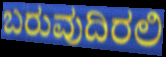
ಬರುವುದಿರಲಿ